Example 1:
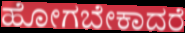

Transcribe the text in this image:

ಹೋಗಬೇಕಾದರೆ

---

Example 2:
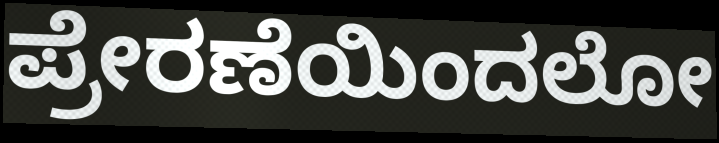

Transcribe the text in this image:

ಪ್ರೇರಣೆಯಿಂದಲೋ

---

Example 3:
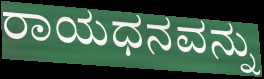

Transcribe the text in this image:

ರಾಯಧನವನ್ನು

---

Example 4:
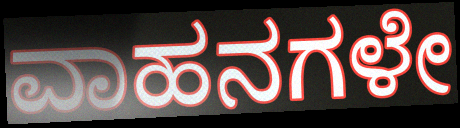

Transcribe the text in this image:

ವಾಹನಗಳೇ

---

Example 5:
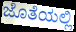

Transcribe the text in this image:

ಜೊತೆಯಲ್ಲಿ